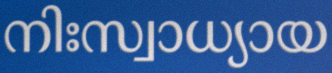
നിഃസ്വാധ്യായ